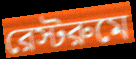
রেস্টরুমে